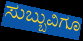
ಸುಬ್ಬುವಿಗೂ